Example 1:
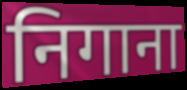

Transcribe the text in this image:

निगाना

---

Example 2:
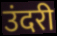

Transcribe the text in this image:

उंदरी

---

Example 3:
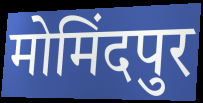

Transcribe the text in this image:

मोमिंदपुर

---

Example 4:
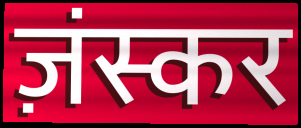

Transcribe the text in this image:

ज़ंस्कर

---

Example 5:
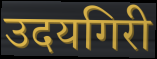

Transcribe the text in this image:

उदयगिरी